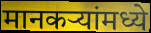
मानकऱ्यांमध्ये